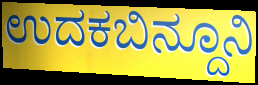
ಉದಕಬಿನ್ದೂನಿ